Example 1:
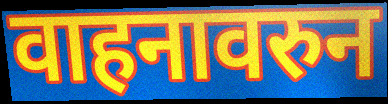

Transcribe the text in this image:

वाहनावरुन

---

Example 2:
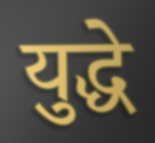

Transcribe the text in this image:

युद्धे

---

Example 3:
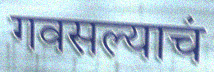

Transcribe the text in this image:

गवसल्याचं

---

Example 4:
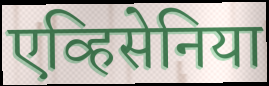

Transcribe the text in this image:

एव्हिसेनिया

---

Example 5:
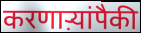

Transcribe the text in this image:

करणाऱ्‍यांपैकी